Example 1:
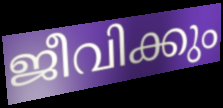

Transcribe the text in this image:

ജീവിക്കും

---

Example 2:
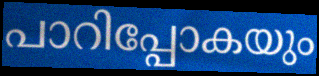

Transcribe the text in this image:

പാറിപ്പോകയും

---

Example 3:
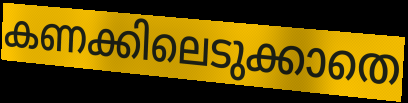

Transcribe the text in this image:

കണക്കിലെടുക്കാതെ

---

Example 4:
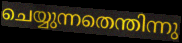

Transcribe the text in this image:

ചെയ്യുന്നതെന്തിന്നു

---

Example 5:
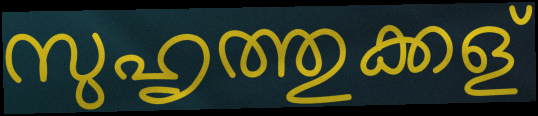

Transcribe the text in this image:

സുഹൃത്തുക്കള്